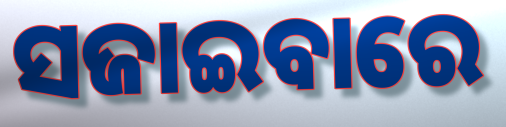
ସଜାଇବାରେ